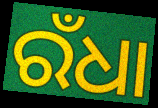
ରଁଧା